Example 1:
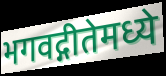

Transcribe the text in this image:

भगवद्गीतेमध्ये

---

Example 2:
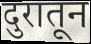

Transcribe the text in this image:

दुरातून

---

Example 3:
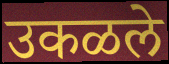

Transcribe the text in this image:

उकळले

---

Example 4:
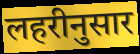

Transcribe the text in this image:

लहरीनुसार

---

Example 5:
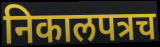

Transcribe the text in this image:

निकालपत्रच